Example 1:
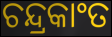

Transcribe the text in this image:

ଚନ୍ଦ୍ରକାଂତ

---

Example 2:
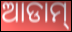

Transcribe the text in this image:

ଆଡାମ୍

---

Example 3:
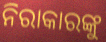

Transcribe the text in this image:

ନିରାକାରଙ୍କୁ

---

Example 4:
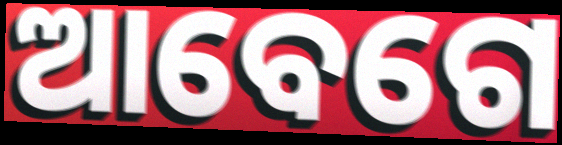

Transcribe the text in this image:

ଆବେଗେ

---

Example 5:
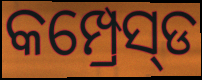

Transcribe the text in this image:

କମ୍ପ୍ରେସ୍‌ଡ